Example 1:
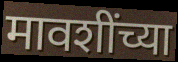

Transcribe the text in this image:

मावशींच्या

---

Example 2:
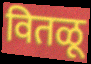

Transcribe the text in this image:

वितळू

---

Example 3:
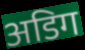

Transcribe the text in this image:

अडिग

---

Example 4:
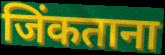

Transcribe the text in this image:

जिंकताना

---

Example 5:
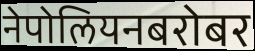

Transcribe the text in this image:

नेपोलियनबरोबर